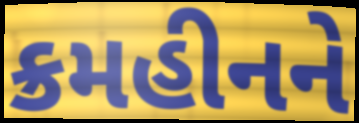
ક્રમહીનને